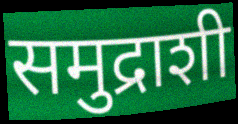
समुद्राशी